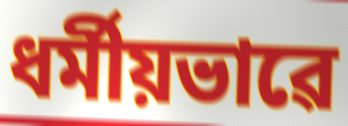
ধৰ্মীয়ভাৱে